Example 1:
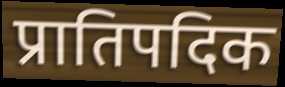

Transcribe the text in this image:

प्रातिपदिक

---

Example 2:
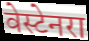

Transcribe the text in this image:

वेस्टेनरा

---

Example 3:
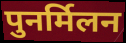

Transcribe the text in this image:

पुनर्मिलन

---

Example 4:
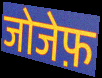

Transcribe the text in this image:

जोजेफ़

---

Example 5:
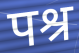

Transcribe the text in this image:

पश्र